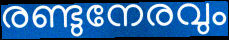
രണ്ടുനേരവും